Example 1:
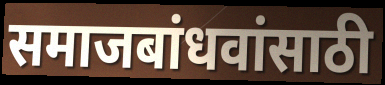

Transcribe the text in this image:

समाजबांधवांसाठी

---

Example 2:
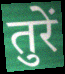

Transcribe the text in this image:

तुरें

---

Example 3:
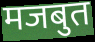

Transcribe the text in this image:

मजबुत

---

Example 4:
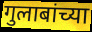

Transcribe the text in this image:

गुलाबांच्या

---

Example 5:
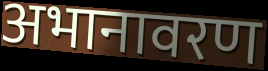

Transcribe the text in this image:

अभानावरण